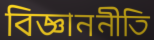
বিজ্ঞাননীতি